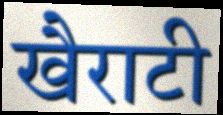
खैराटी